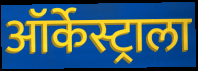
ऑर्केस्ट्राला